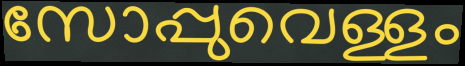
സോപ്പുവെള്ളം